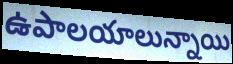
ఉపాలయాలున్నాయి